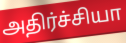
அதிர்ச்சியா